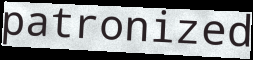
patronized